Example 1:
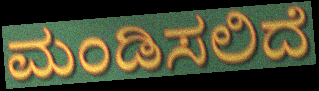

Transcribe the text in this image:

ಮಂಡಿಸಲಿದೆ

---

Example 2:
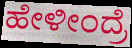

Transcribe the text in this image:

ಹೇಳೀಂದ್ರೆ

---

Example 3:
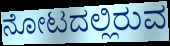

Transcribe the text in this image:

ನೋಟದಲ್ಲಿರುವ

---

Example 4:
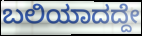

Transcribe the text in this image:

ಬಲಿಯಾದದ್ದೇ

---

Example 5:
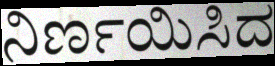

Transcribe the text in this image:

ನಿರ್ಣಯಿಸಿದ